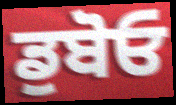
ਡੁਬੋਓ